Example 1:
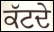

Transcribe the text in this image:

ਕੱਟਦੇ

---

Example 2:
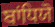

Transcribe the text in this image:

ਬਾਂਧਿਯੋ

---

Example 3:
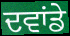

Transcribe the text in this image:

ਦਵਾਂਡੇ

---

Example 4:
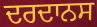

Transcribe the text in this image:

ਦਰਦਾਨਸ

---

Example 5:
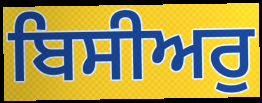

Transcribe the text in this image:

ਬਿਸੀਅਰੁ